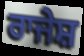
ਰਾਜੇਸ਼